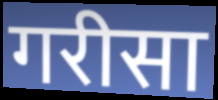
गरीसा